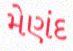
મેણંદ